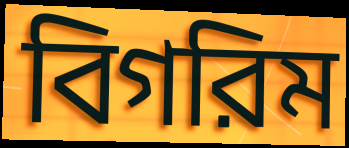
বিগরিম